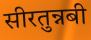
सीरतुन्नबी